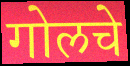
गोलचे